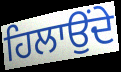
ਹਿਲਾਉਂਦੇ